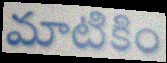
మాటికిం